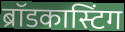
ब्रॉडकास्टिंग